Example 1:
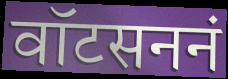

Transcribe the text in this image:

वॉटसननं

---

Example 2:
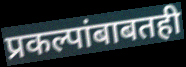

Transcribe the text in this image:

प्रकल्पांबाबतही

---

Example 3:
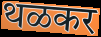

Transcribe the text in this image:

थळकर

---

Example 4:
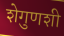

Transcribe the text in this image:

शेगुणशी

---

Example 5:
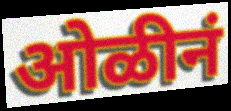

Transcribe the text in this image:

ओळीनं